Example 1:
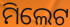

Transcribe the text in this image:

ମିଲେଟ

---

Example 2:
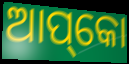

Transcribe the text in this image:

ଆପ୍‌କୋ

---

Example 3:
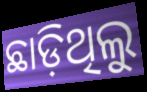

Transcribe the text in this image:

ଛାଡ଼ିଥିଲୁ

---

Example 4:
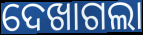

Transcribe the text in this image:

ଦେଖାଗଲା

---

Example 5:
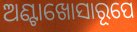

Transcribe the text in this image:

ଅଣ୍ଟାଖୋସାରୂପେ